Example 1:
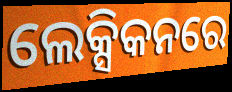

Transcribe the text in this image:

ଲେକ୍ସିକନରେ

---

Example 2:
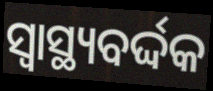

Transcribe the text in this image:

ସ୍ଵାସ୍ଥ୍ୟବର୍ଦ୍ଦକ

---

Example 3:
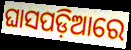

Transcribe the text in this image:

ଘାସପଡ଼ିଆରେ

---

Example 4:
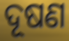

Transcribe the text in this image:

ଦୂଷଣ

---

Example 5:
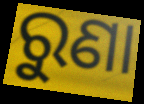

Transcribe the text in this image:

ରୁଣା